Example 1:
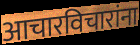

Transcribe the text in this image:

आचारविचारांना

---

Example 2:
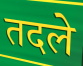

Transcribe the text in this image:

तदले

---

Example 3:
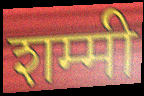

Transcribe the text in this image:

शम्मी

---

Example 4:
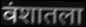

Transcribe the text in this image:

वंशातला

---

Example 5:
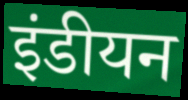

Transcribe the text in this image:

इंडीयन